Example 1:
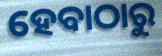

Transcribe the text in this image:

ହେବାଠାରୁ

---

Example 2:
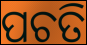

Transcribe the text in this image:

ପଚତି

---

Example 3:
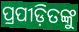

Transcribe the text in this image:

ପ୍ରପୀଡ଼ିତଙ୍କୁ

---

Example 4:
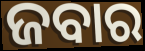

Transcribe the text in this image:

ଜବାର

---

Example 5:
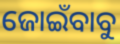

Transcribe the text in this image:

ଜୋଇଁବାବୁ